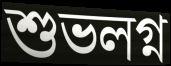
শুভলগ্ন